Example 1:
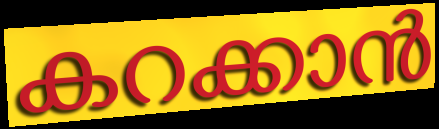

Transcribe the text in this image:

കറക്കാൻ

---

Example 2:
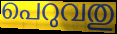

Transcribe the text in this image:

പെറുവതു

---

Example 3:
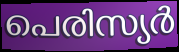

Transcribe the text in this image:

പെരിസ്യർ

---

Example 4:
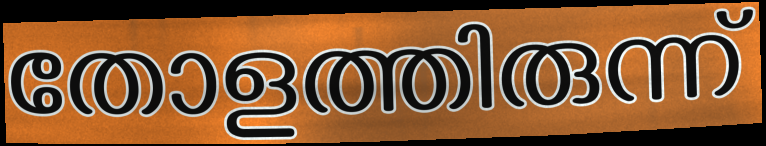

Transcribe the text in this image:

തോളത്തിരുന്ന്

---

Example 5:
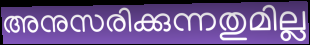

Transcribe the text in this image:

അനുസരിക്കുന്നതുമില്ല